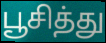
பூசித்து